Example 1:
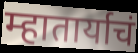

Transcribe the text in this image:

म्हातार्याचं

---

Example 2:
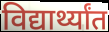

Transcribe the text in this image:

विद्यार्थ्यांत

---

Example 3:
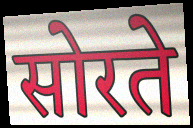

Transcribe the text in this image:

सोरते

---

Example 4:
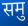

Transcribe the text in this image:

समु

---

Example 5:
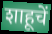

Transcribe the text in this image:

शाहूचें